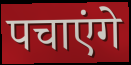
पचाएंगे